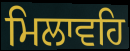
ਮਿਲਾਵਹਿ